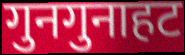
गुनगुनाहट